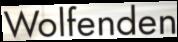
Wolfenden